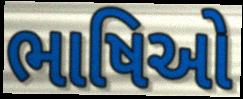
ભાષિઓ